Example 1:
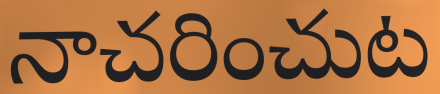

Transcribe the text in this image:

నాచరించుట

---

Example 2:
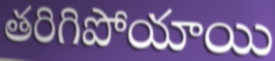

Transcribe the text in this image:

తరిగిపోయాయి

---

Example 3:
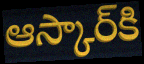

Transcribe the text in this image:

ఆస్కార్‌కి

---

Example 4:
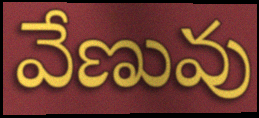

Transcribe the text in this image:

వేణువు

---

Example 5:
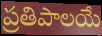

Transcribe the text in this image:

ప్రతిపాలయే